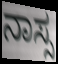
ನಾಸ್ಸ